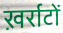
ख़र्राटों